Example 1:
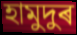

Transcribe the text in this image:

হামুদুৰ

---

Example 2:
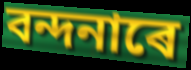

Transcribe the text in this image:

বন্দনাৰে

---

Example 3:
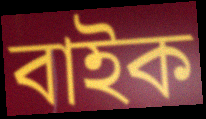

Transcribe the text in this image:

বাইক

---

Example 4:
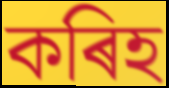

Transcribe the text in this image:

কৰিহ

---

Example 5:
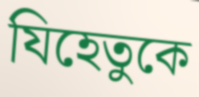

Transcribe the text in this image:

যিহেতুকে